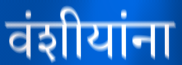
वंशीयांना